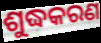
ଶୁଦ୍ଧକରଣ